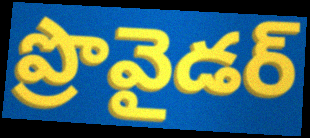
ప్రొవైడర్